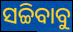
ସଚ୍ଚିବାବୁ